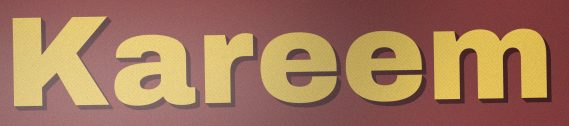
Kareem